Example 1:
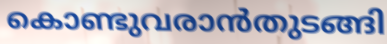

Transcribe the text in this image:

കൊണ്ടുവരാൻതുടങ്ങി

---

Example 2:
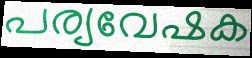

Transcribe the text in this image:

പര്യവേഷക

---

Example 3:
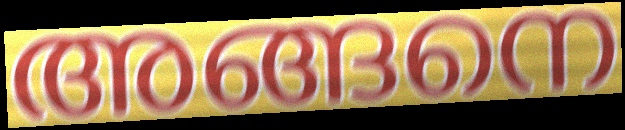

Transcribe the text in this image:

അങ്ങനെ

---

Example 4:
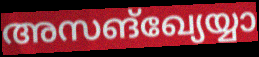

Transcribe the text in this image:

അസങ്ഖ്യേയ്യാ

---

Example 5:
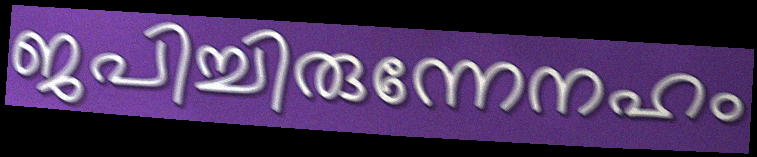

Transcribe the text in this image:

ജപിച്ചിരുന്നേനഹം